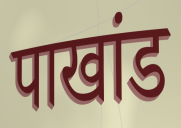
पाखांड